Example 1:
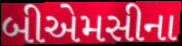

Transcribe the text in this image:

બીએમસીના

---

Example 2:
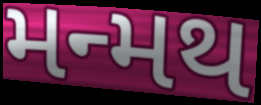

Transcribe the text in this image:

મન્મથ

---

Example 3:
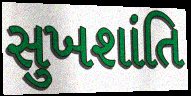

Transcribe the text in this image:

સુખશાંતિ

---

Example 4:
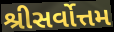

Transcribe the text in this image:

શ્રીસર્વોત્તમ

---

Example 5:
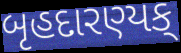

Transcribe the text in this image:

બૃહદારણ્યક્